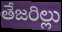
తేజరిల్లు